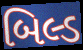
બિલ્ડ